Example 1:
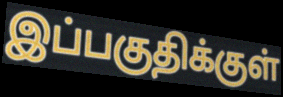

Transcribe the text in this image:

இப்பகுதிக்குள்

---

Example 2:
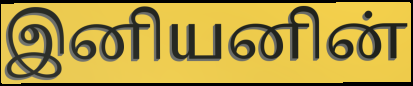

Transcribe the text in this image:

இனியனின்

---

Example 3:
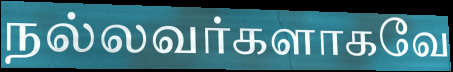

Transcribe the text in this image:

நல்லவர்களாகவே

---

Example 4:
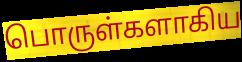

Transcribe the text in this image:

பொருள்களாகிய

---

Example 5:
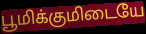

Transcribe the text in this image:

பூமிக்குமிடையே